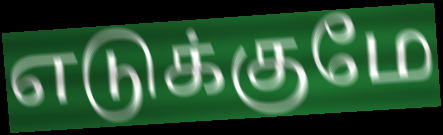
எடுக்குமே